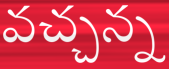
వచ్చన్న